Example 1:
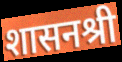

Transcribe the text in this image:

शासनश्री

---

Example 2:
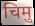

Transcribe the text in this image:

चिमु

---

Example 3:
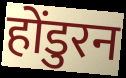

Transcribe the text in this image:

होंडुरन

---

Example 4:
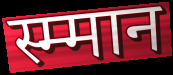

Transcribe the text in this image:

स्म्मान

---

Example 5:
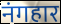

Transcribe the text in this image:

नंगहार